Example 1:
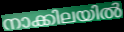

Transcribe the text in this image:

നാക്കിലയിൽ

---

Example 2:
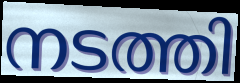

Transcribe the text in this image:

നടത്തി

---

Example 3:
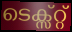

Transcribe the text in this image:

ടെക്സ്റ്റ്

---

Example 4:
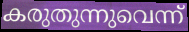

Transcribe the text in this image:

കരുതുന്നുവെന്ന്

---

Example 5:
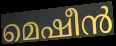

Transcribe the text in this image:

മെഷീൻ